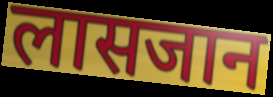
लासजान